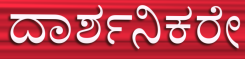
ದಾರ್ಶನಿಕರೇ